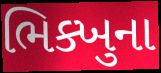
ભિક્ખુના